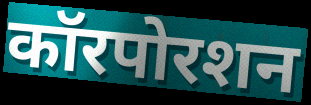
कॉरपोरशन